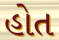
હોત